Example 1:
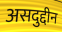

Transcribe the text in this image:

असदुद्दीन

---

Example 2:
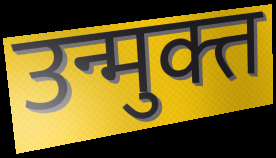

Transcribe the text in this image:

उन्मुक्त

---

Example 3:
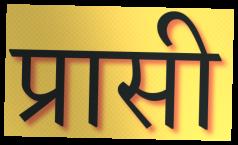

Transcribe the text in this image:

प्रासी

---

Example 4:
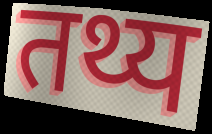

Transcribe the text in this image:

तथ्य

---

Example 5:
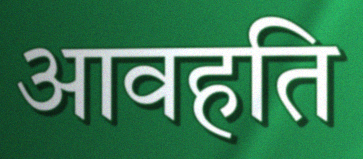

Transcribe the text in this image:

आवहति